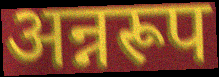
अन्नरूप